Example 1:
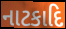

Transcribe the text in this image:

નાટકાદિ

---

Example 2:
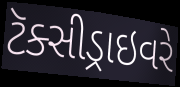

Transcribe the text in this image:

ટૅક્સીડ્રાઇવરે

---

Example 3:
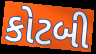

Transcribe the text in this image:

કોટબી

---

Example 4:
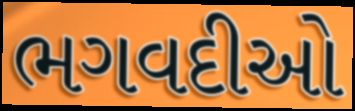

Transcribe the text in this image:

ભગવદીઓ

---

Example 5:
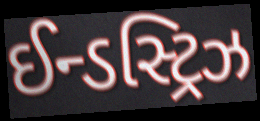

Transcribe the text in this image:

ઈન્ડસ્ટ્રિઝ